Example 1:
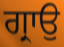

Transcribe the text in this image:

ਗ੍ਰਾਉ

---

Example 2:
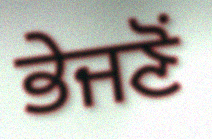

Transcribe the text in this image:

ਭੇਜਣੋਂ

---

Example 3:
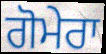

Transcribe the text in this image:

ਗੋਮੇਰਾ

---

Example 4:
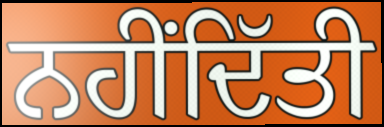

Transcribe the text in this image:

ਨਹੀਂਦਿੱਤੀ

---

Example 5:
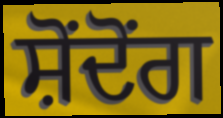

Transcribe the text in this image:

ਸ਼ੋਂਦੋਂਗ